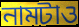
নামটাও